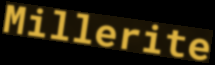
Millerite